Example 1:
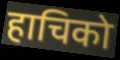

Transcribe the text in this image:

हाचिको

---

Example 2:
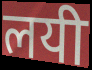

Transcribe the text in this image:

लयी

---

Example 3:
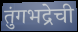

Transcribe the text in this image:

तुंगभद्रेची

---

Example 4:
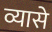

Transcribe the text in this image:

व्यासे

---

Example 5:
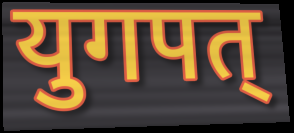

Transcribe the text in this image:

युगपत्